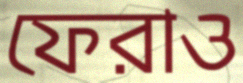
ফেরাও